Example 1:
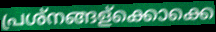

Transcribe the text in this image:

പ്രശ്നങ്ങള്ക്കൊക്കെ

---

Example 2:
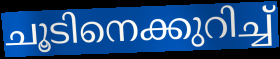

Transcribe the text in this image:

ചൂടിനെക്കുറിച്ച്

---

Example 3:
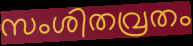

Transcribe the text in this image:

സംശിതവ്രതം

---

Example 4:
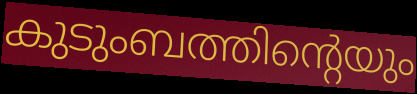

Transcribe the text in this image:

കുടുംബത്തിന്റെയും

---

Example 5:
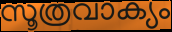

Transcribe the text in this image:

സൂത്രവാക്യം